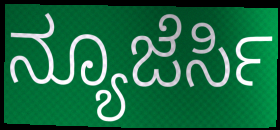
ನ್ಯೂಜೆರ್ಸಿ